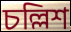
চল্লিশ